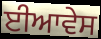
ਈਆਵੇਸ